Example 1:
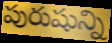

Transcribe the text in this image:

పురుషున్ని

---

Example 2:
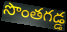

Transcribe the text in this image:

సొంతగడ్డ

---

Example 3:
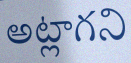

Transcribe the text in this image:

అట్లాగని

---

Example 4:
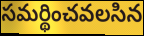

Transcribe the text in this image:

సమర్థించవలసిన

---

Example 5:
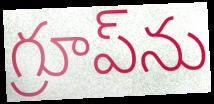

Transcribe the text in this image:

గ్రూప్‌ను